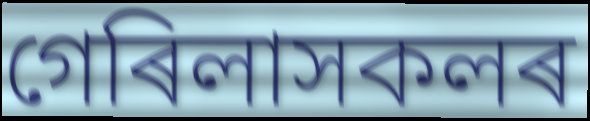
গেৰিলাসকলৰ